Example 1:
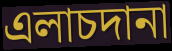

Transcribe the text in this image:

এলাচদানা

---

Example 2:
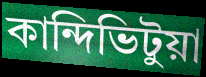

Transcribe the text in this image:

কান্দিভিটুয়া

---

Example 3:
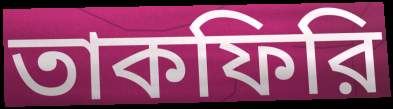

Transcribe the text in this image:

তাকফিরি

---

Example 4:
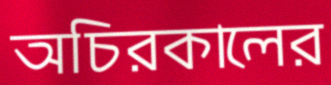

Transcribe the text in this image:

অচিরকালের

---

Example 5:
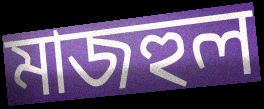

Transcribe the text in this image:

মাজহুল